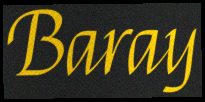
Baray